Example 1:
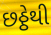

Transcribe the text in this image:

છઠ્ઠેથી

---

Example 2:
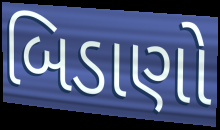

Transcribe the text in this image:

બિડાણો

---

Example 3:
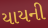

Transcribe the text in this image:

યાયની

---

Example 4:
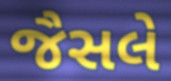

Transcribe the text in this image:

જૈસલે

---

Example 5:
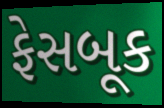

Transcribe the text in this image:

ફેસબૂક